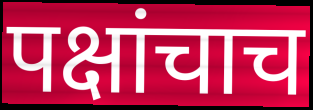
पक्षांचाच